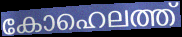
കോഹെലത്ത്